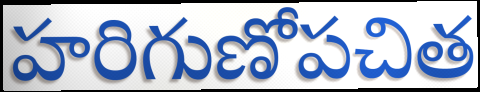
హరిగుణోపచిత